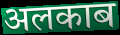
अलकाब